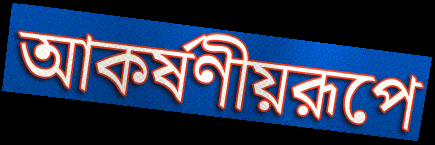
আকর্ষণীয়রূপে